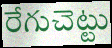
రేగుచెట్టు